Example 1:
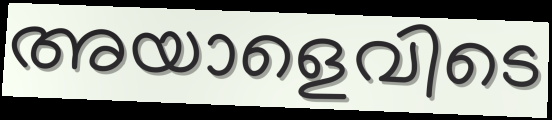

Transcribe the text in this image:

അയാളെവിടെ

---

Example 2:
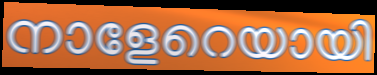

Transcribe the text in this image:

നാളേറെയായി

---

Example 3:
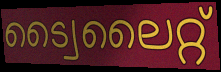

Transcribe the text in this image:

ട്വൈലൈറ്റ്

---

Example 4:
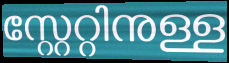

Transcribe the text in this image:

സ്റ്റേറ്റിനുള്ള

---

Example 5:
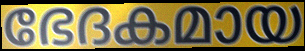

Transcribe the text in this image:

ഭേദകമായ